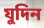
যুদিন